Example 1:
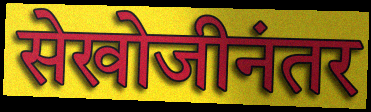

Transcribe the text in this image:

सेखोजीनंतर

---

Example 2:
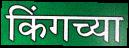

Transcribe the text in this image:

किंगच्या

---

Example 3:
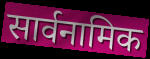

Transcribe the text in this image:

सार्वनामिक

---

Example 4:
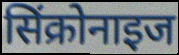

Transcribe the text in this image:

सिंक्रोनाइज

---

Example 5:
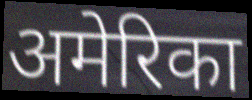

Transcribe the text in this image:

अमेरिका